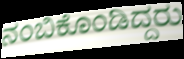
ನಂಬಿಕೊಂಡಿದ್ದರು